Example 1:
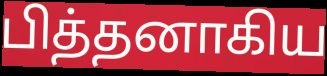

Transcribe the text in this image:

பித்தனாகிய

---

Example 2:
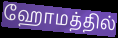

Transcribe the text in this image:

ஹோமத்தில்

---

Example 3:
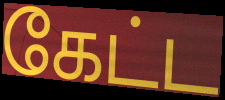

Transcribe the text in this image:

கேட்ட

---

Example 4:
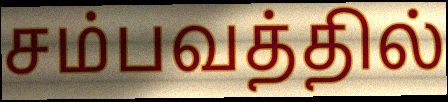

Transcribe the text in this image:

சம்பவத்தில்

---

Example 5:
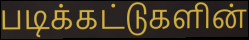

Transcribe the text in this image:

படிக்கட்டுகளின்